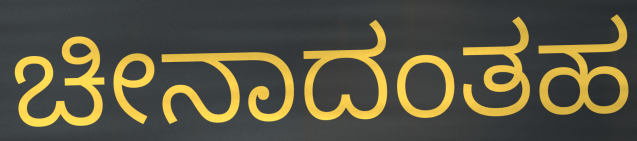
ಚೀನಾದಂತಹ